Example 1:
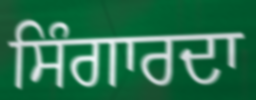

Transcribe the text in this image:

ਸਿੰਗਾਰਦਾ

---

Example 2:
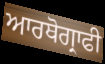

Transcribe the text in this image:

ਆਰਥੋਗ੍ਰਾਫੀ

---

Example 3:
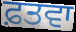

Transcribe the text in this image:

ਫ਼ਤਵਾ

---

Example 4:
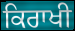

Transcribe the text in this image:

ਕਿਰਾਖੀ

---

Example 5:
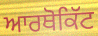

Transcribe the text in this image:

ਆਰਥੋਕਿੱਟ